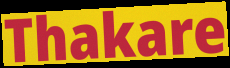
Thakare